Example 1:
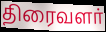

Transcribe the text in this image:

திரைவளர்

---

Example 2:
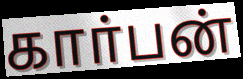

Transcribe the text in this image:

கார்பன்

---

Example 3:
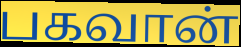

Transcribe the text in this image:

பகவான்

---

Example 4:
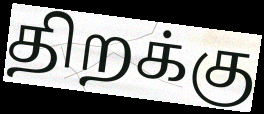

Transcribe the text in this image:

திறக்கு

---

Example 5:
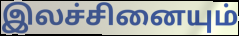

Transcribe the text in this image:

இலச்சினையும்